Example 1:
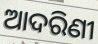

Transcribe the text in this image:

ଆଦରିଣୀ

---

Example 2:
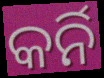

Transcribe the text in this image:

କର୍ନି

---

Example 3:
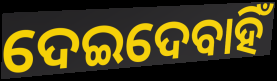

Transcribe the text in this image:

ଦେଇଦେବାହିଁ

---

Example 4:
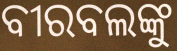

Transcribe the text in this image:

ବୀରବଲଙ୍କୁ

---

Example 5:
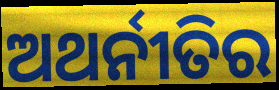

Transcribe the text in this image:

ଅଥର୍ନୀତିର